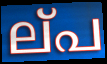
ല്‌പ